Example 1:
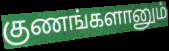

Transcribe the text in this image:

குணங்களானும்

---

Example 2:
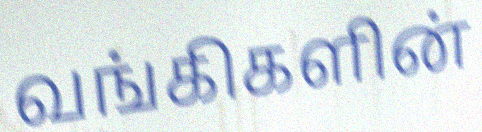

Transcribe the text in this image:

வங்கிகளின்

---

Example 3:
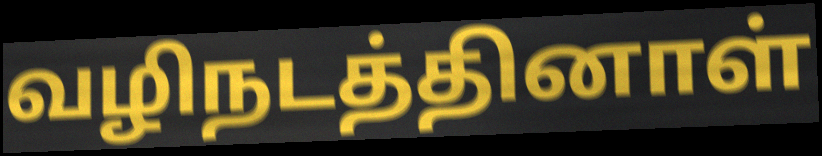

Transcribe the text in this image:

வழிநடத்தினாள்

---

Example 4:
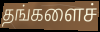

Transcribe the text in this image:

தங்களைச்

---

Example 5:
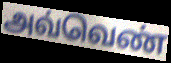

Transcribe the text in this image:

அவ்வெண்